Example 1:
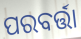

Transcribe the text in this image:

ପରବର୍ତ୍ତା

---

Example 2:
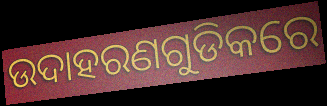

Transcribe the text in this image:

ଉଦାହରଣଗୁଡିକରେ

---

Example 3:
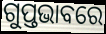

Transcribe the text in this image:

ଗୁପ୍ତଭାବରେ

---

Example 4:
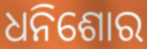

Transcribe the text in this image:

ଧନିଶୋର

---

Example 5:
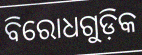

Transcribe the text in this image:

ବିରୋଧଗୁଡ଼ିକ